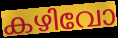
കഴിവോ